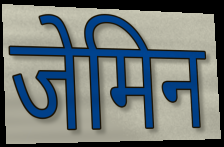
जेमिन